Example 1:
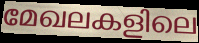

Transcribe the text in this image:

മേഖലകളിലെ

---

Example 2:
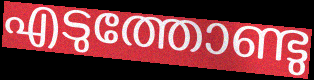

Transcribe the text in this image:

എടുത്തോണ്ടു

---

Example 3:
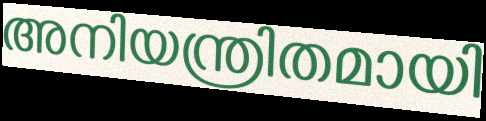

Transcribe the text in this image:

അനിയന്ത്രിതമായി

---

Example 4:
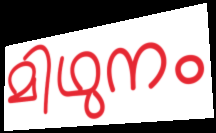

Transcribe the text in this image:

മിഥുനം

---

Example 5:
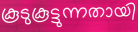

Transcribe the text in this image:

കൂടുകൂട്ടുന്നതായി